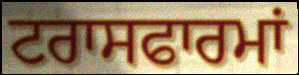
ਟਰਾਸਫਾਰਮਾਂ